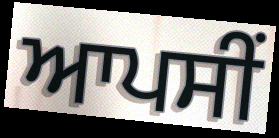
ਆਪਸੀਂ